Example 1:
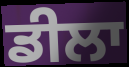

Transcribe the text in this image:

ਡੀਲਾ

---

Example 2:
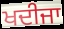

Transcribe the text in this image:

ਖਦੀਜਾ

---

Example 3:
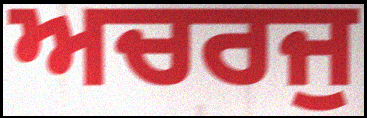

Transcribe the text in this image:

ਅਚਰਜੁ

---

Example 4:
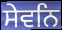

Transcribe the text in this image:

ਸੇਵਨਿ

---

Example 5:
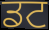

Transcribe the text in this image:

ਡਟ